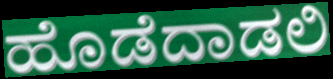
ಹೊಡೆದಾಡಲಿ